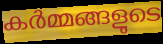
കർമ്മങ്ങളുടെ